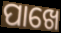
ପାଖେ